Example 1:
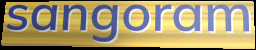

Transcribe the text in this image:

sangoram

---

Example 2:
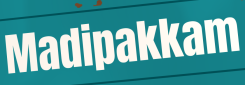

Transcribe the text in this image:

Madipakkam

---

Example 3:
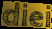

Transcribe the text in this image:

diei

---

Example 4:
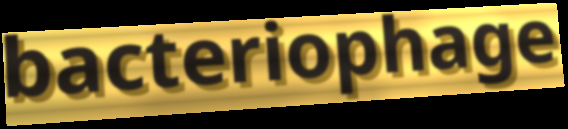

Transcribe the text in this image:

bacteriophage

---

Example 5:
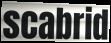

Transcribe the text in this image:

scabrid